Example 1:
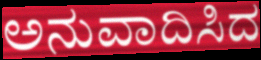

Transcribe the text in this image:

ಅನುವಾದಿಸಿದ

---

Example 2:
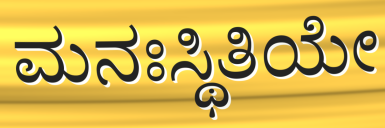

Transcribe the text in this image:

ಮನಃಸ್ಥಿತಿಯೇ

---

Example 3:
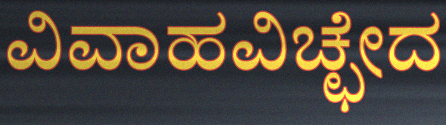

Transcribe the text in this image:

ವಿವಾಹವಿಚ್ಛೇದ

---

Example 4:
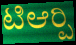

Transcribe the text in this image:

ಟಿಆರ್‍ಪಿ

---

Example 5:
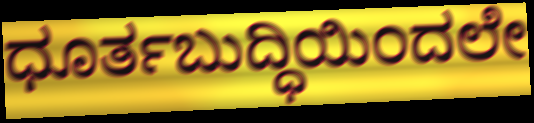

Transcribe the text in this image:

ಧೂರ್ತಬುದ್ಧಿಯಿಂದಲೇ